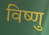
विष्‍णु